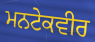
ਮਨਟੇਕਵੀਰ